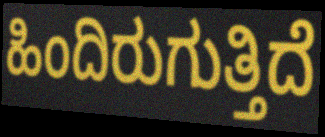
ಹಿಂದಿರುಗುತ್ತಿದೆ